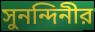
সুনন্দিনীর